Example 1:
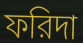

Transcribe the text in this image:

ফরিদা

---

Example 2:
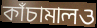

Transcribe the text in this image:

কাঁচামালও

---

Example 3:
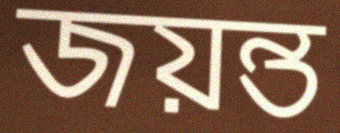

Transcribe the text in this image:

জয়ন্ত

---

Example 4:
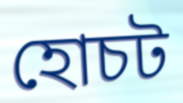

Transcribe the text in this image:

হোচট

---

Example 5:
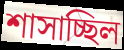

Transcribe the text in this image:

শাসাচ্ছিল